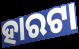
ହାରଟା